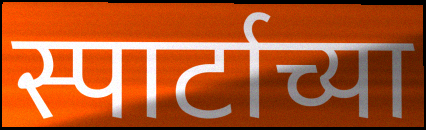
स्पार्टाच्या